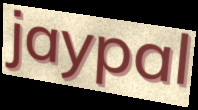
jaypal